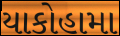
યાકોહામા